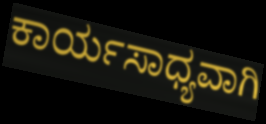
ಕಾರ್ಯಸಾಧ್ಯವಾಗಿ